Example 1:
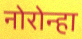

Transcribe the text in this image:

नोरोन्हा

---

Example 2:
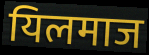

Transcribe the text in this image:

यिलमाज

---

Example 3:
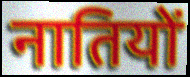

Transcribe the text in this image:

नातियों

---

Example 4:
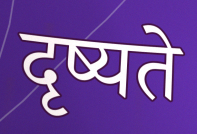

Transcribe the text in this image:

दृष्यते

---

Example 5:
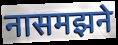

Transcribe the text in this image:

नासमझने